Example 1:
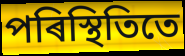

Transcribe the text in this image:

পৰিস্থিতিতে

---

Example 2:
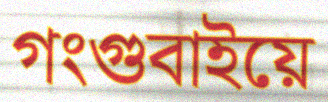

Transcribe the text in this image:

গংগুবাইয়ে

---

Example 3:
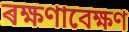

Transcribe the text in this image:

ৰক্ষণাবেক্ষণ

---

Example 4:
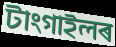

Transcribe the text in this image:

টাংগাইলৰ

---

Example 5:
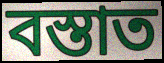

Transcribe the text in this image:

বস্তাত